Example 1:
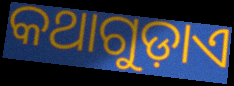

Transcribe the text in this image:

କଥାଗୁଡ଼ାଏ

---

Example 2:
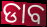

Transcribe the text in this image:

ଡାବ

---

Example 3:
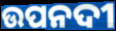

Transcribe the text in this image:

ଉପନଦୀ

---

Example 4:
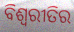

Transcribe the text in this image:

ବିଶ୍ଵରୀତିର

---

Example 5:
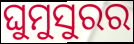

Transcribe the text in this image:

ଘୁମୁସୁରର